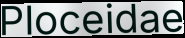
Ploceidae